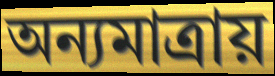
অন্যমাত্রায়